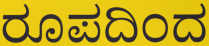
ರೂಪದಿಂದ